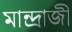
মান্দ্রাজী